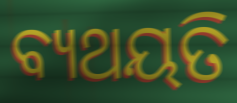
ବ୍ୟଥୟତି